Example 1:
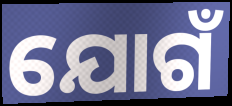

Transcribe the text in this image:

ଯୋଗଁ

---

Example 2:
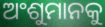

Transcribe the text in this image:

ଅଂଶୁମାନକୁ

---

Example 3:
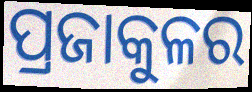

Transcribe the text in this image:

ପ୍ରଜାକୁଳର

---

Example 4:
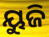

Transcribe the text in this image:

ୟୁଜି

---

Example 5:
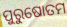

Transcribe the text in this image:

ପୁରୁଷୋତମ